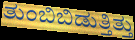
ತುಂಬಿಬಿಡುತ್ತಿತ್ತು